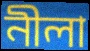
নীলা